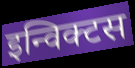
इन्विक्टस